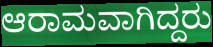
ಆರಾಮವಾಗಿದ್ದರು